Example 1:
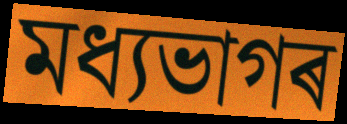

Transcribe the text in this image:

মধ্যভাগৰ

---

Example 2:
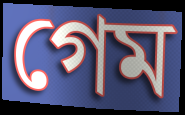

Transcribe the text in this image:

গেম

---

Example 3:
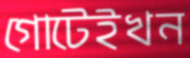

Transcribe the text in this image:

গোটেইখন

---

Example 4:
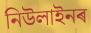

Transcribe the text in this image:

নিউলাইনৰ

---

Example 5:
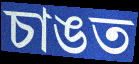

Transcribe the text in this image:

চাঙত